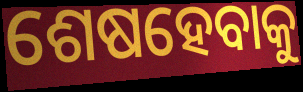
ଶେଷହେବାକୁ